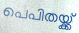
പെപിതയ്ക്ക്